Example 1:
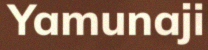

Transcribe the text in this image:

Yamunaji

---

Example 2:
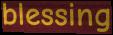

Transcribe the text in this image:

blessing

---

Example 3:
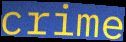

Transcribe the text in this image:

crime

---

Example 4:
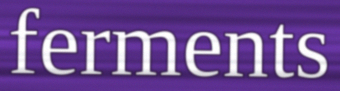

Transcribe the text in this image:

ferments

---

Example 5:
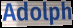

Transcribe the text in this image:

Adolph